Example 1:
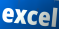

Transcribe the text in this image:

excel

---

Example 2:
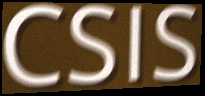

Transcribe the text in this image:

CSIS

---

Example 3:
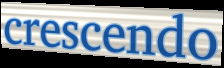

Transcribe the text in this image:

crescendo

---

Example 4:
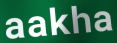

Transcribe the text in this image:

aakha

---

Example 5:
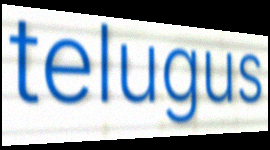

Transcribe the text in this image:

telugus